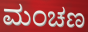
ಮಂಚಣ